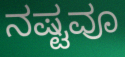
ನಷ್ಟವೂ